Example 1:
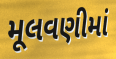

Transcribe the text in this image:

મૂલવણીમાં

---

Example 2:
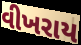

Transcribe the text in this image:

વીખરાય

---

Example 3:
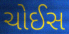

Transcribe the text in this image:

ચોઈસ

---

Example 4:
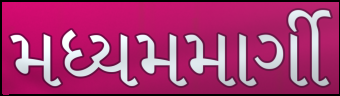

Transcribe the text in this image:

મધ્યમમાર્ગી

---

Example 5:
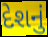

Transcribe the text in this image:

દેશનું